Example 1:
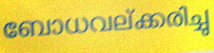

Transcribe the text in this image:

ബോധവല്ക്കരിച്ചു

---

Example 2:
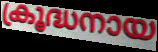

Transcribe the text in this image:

ക്രൂദ്ധനായ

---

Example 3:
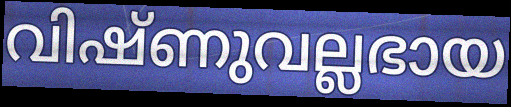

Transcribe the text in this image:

വിഷ്ണുവല്ലഭായ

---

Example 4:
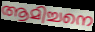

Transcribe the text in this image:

ആമിച്ചനെ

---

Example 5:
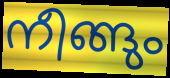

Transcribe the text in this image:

നീങ്ങും